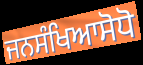
ਜਨਸੰਖਿਆਸੋਧੋ